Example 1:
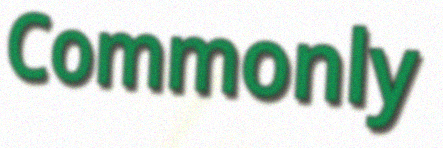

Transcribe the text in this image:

Commonly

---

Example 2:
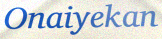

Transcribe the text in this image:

Onaiyekan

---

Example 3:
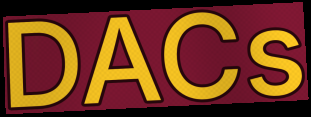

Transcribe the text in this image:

DACs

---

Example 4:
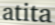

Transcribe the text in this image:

atita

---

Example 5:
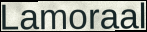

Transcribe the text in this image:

Lamoraal